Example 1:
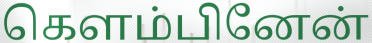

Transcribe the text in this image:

கெளம்பினேன்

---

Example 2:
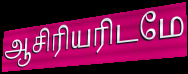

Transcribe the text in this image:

ஆசிரியரிடமே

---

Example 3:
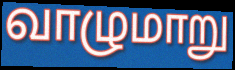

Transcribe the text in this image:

வாழுமாறு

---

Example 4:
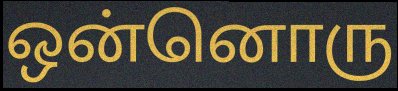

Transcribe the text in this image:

ஒன்னொரு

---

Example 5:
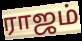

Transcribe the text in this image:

ராஜம்